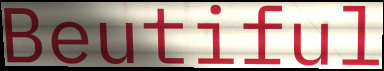
Beutiful